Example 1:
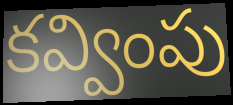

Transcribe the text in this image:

కవ్వింపు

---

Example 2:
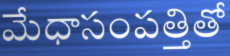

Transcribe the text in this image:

మేధాసంపత్తితో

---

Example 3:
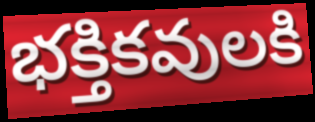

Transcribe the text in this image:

భక్తికవులకి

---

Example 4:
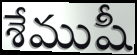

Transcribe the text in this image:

శేముషీ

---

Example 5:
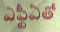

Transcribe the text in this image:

ఎఫ్టీఏతో